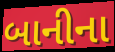
બાનીના